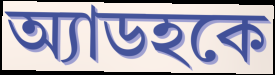
অ্যাডহকে